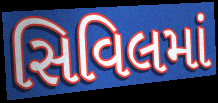
સિવિલમાં